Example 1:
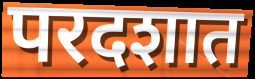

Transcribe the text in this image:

परदशात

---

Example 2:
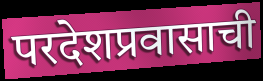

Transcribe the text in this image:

परदेशप्रवासाची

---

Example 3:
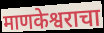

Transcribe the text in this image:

माणकेश्वराचा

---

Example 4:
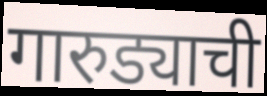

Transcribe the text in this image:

गारुड्याची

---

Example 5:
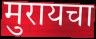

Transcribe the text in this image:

मुरायचा